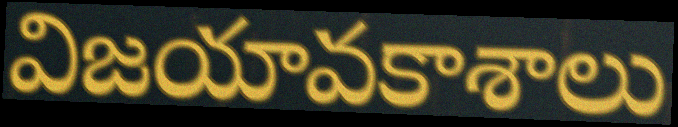
విజయావకాశాలు